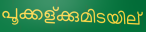
പൂക്കള്ക്കുമിടയില്